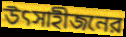
উৎসাহীজনের